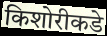
किशोरीकडे